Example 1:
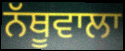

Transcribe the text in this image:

ਨੱਥੂਵਾਲਾ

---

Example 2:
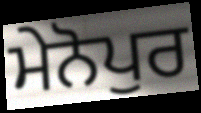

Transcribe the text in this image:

ਮੇਨੋਪੁਰ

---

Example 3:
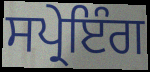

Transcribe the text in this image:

ਸਪ੍ਰੇਇੰਗ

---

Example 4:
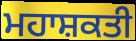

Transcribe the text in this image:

ਮਹਾਸ਼ਕਤੀ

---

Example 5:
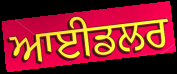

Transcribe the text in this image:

ਆਈਡਲਰ